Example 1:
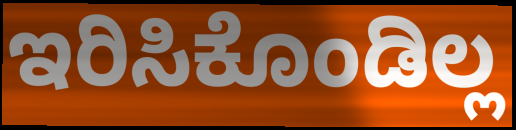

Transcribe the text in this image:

ಇರಿಸಿಕೊಂಡಿಲ್ಲ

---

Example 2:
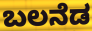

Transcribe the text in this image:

ಬಲನೆಡ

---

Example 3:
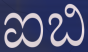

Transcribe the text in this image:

ಐಬಿ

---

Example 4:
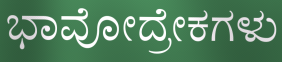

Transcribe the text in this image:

ಭಾವೋದ್ರೇಕಗಳು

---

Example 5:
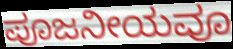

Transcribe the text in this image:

ಪೂಜನೀಯವೂ